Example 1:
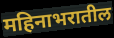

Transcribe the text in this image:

महिनाभरातील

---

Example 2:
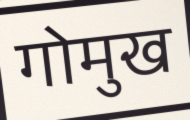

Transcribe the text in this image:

गोमुख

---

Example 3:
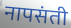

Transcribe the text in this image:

नापसंती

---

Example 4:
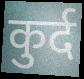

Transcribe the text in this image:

कुर्द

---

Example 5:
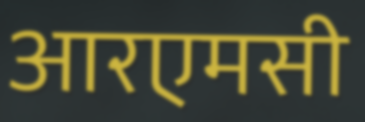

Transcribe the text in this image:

आरएमसी